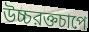
উচ্চরক্তচাপে